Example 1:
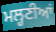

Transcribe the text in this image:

ਮਲ੍ਹਣੀਆਂ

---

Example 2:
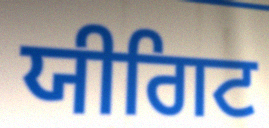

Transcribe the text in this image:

ਯੀਗਿਟ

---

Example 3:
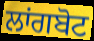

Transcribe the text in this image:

ਲਾਂਗਬੋਟ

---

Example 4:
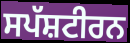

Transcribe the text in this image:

ਸਪੱਸ਼ਟੀਰਨ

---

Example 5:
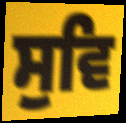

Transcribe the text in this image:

ਸੁਵਿ